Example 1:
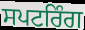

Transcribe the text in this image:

ਸਪਟਰਿੰਗ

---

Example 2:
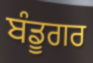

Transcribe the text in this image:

ਬੰਡੂਗਰ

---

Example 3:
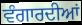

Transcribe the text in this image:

ਵੰਗਾਰਦੀਆਂ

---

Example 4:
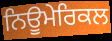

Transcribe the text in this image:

ਨਿਊਮੇਰਿਕਲ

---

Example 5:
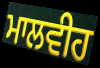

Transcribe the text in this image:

ਮਾਲਵੀਹ